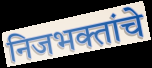
निजभक्तांचे